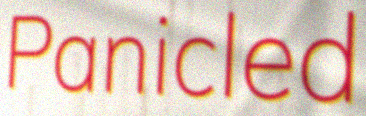
Panicled